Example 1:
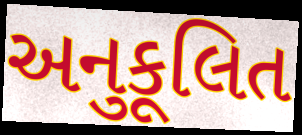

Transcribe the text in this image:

અનુકૂલિત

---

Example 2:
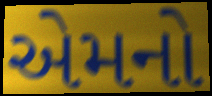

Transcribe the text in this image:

એમનો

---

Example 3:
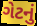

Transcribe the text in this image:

ગેટનું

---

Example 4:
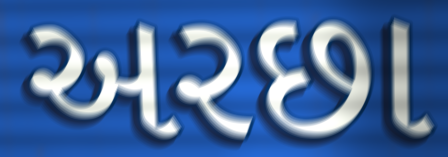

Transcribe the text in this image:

અરછા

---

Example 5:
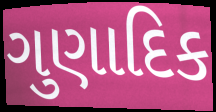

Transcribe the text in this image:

ગુણાદિક